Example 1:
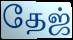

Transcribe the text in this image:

தேஜ்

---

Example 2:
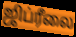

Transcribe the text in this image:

ஜிப்ரீலை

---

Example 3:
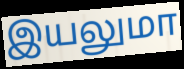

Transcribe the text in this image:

இயலுமா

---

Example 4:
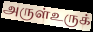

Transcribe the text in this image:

அருள்உருக்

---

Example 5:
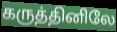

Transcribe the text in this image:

கருத்தினிலே